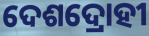
ଦେଶଦ୍ରୋହୀ